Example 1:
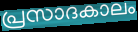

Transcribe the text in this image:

പ്രസാദകാലം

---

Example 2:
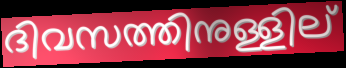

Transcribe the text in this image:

ദിവസത്തിനുള്ളില്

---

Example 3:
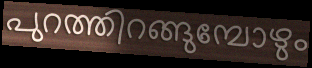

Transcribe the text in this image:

പുറത്തിറങ്ങുമ്പോഴും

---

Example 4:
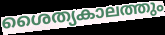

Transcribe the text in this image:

ശൈത്യകാലത്തും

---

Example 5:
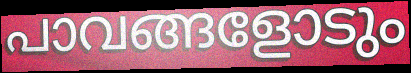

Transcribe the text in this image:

പാവങ്ങളോടും